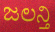
ಜಲನ್ತಿ